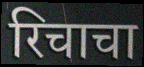
रिचाचा